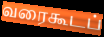
வரைகூடப்